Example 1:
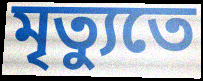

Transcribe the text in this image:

মৃত্যুতে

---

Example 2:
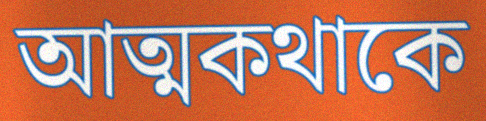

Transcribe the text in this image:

আত্মকথাকে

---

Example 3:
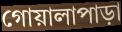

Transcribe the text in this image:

গোয়ালাপাড়া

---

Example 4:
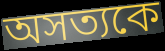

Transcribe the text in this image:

অসত্যকে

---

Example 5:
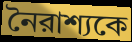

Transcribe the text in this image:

নৈরাশ্যকে